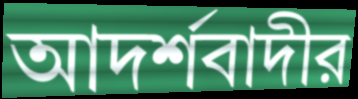
আদর্শবাদীর